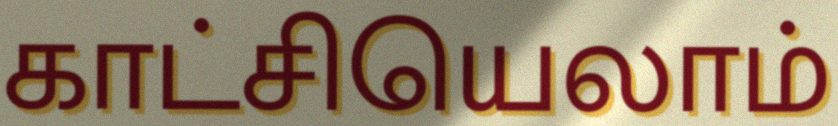
காட்சியெலாம்